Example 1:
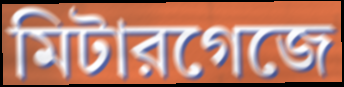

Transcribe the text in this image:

মিটারগেজে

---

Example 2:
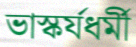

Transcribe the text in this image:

ভাস্কর্যধর্মী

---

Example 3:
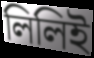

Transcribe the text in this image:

লিলিই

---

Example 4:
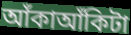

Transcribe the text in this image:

আঁকাআঁকিটা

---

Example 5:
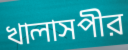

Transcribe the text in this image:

খালাসপীর